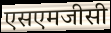
एसएमजीसी